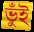
ভুঁই